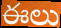
ఈలు